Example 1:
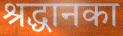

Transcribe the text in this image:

श्रद्धानका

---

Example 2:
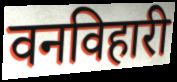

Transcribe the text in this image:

वनविहारी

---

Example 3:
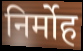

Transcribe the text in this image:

निर्मोह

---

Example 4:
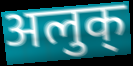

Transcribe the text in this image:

अलुक्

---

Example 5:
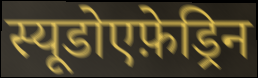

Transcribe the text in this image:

स्यूडोएफ़ेड्रिन